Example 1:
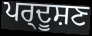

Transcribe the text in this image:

ਪਰ੍ਦੂਸ਼ਣ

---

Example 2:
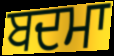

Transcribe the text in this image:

ਬਦਮਾ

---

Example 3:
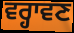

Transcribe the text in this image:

ਵਰ੍ਹਾਵਣ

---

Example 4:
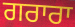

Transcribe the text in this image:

ਗਰਾਰਾ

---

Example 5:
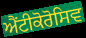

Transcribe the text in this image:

ਐਂਟੀਕੋਰੋਸਿਵ